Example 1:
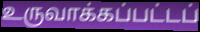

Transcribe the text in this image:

உருவாக்கப்பட்டப்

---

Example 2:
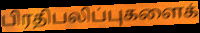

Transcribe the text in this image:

பிரதிபலிப்புகளைக்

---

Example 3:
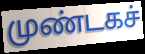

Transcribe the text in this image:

முண்டகச்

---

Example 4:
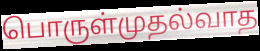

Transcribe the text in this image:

பொருள்முதல்வாத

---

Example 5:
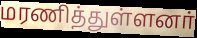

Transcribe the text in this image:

மரணித்துள்ளனர்